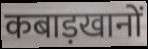
कबाड़खानों